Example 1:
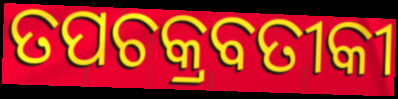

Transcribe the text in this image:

ତପଚକ୍ରବତୀକୀ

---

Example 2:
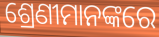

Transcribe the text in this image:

ଶ୍ରେଣୀମାନଙ୍କରେ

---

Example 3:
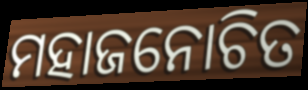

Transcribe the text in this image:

ମହାଜନୋଚିତ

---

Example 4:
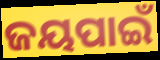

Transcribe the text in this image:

ଜୟପାଇଁ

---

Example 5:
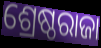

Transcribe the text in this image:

ଶ୍ରେଷ୍ଠରାଜା